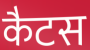
कैटस